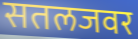
सतलजवर